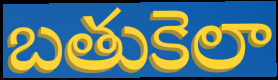
బతుకెలా